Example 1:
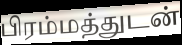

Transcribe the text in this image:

பிரம்மத்துடன்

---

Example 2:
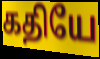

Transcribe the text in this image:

கதியே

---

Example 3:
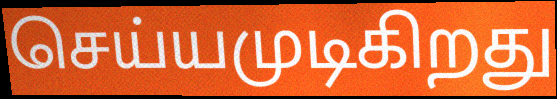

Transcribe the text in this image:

செய்யமுடிகிறது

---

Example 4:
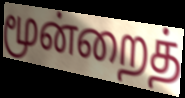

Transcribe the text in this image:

மூன்றைத்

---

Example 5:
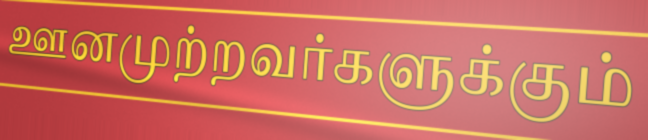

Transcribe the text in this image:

ஊனமுற்றவர்களுக்கும்